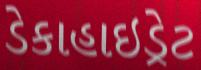
ડેકાહાઇડ્રેટ